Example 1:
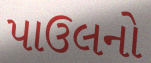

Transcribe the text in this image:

પાઉલનો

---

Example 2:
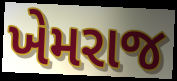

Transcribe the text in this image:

ખેમરાજ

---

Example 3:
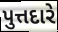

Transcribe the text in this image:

પુત્તદારે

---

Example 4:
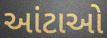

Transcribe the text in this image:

આંટાઓ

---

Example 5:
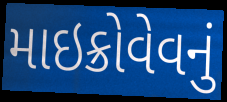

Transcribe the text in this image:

માઇક્રોવેવનું